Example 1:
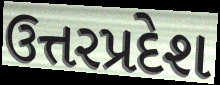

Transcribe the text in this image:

ઉત્તરપ્રદેશ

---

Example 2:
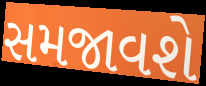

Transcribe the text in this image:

સમજાવશે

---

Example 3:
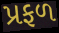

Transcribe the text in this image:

પ્રફળ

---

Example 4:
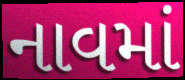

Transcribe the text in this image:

નાવમાં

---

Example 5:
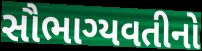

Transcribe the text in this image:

સૌભાગ્યવતીનો